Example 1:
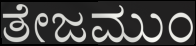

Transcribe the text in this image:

ತೇಜಮುಂ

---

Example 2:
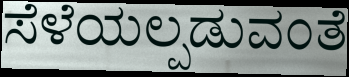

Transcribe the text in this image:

ಸೆಳೆಯಲ್ಪಡುವಂತೆ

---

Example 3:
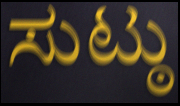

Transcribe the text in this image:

ಸುಟ್ಠು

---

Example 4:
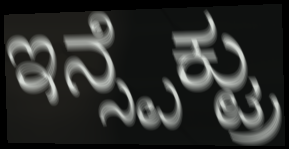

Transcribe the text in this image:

ಇನ್ಸ್ಪೆಕ್ಟ್ರು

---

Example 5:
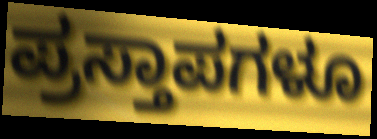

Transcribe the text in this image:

ಪ್ರಸ್ತಾಪಗಳೂ